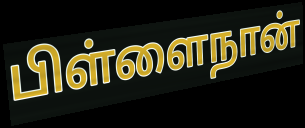
பிள்ளைநான்